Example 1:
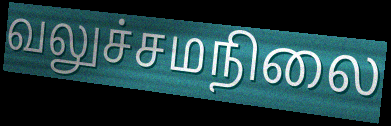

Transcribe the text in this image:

வலுச்சமநிலை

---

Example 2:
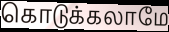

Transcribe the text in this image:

கொடுக்கலாமே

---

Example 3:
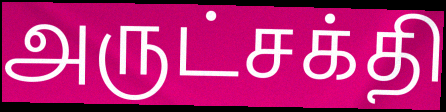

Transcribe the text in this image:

அருட்சக்தி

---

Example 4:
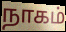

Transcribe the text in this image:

நாகம்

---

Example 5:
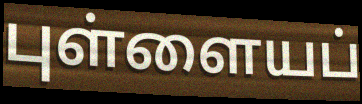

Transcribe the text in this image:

புள்ளையப்